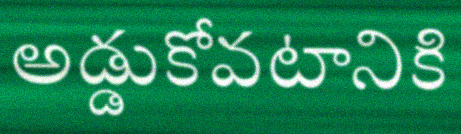
అడ్డుకోవటానికి